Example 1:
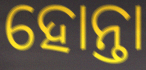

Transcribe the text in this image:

ହୋନ୍ତା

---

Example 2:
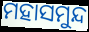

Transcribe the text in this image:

ମହାସମୁନ୍ଦ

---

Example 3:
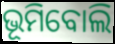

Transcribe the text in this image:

ଭୂମିବୋଲି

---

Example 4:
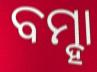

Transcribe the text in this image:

ବମ୍ହା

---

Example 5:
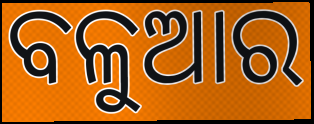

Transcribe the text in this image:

ବଳୁଆର